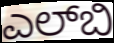
ಎಲ್‌ಬಿ